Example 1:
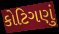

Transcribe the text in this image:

કોટિગણું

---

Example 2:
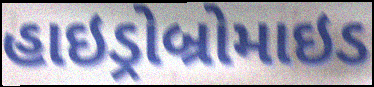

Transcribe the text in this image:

હાઇડ્રોબ્રોમાઇડ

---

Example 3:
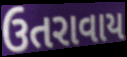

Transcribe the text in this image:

ઉતરાવાય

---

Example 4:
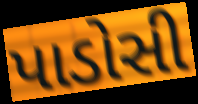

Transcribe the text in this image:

પાડોસી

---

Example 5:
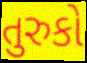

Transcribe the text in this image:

તુરુકો